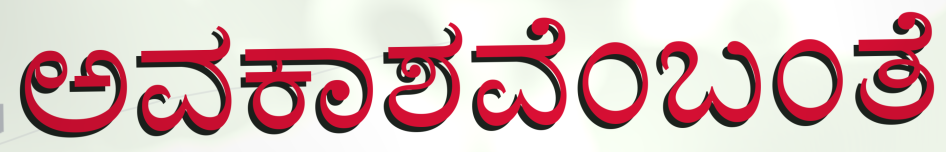
ಅವಕಾಶವೆಂಬಂತೆ